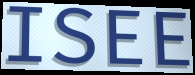
ISEE